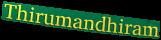
Thirumandhiram